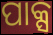
ପାକ୍ସ